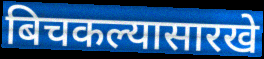
बिचकल्यासारखे